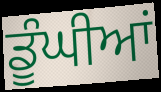
ਡੂੰਘੀਆਂ